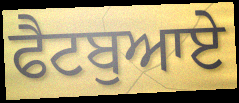
ਫੈਟਬੁਆਏ